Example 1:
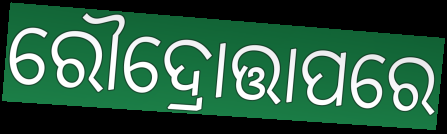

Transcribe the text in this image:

ରୌଦ୍ରୋତ୍ତାପରେ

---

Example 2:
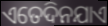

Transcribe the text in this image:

ଏତେଦିନଯାଏ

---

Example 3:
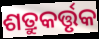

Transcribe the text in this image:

ଶତ୍ରୁକର୍ତ୍ତୃକ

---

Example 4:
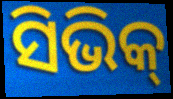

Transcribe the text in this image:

ସିଭିକ୍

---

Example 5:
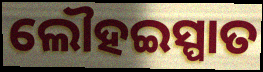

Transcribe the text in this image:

ଲୌହଇସ୍ପାତ